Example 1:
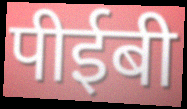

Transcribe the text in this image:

पीईबी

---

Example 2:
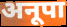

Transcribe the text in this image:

अनूपा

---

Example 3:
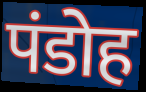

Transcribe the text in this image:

पंडोह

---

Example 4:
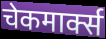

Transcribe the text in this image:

चेकमार्क्स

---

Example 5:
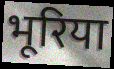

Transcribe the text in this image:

भूरिया